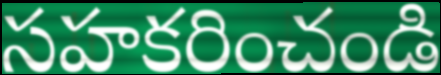
సహకరించండి